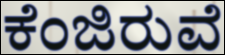
ಕೆಂಜಿರುವೆ